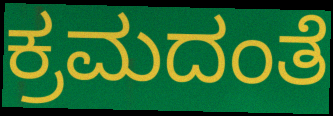
ಕ್ರಮದಂತೆ